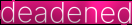
deadened